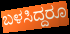
ಬಳಸಿದ್ದರೂ